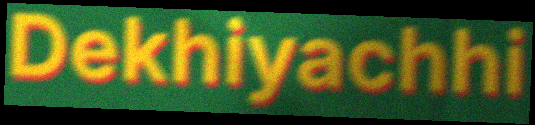
Dekhiyachhi